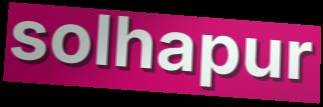
solhapur